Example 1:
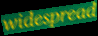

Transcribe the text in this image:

widespread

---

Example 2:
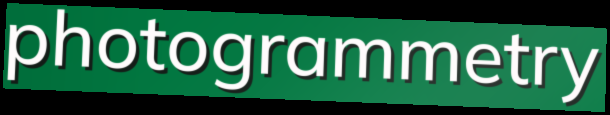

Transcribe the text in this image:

photogrammetry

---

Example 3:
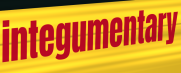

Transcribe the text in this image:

integumentary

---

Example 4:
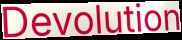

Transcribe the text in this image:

Devolution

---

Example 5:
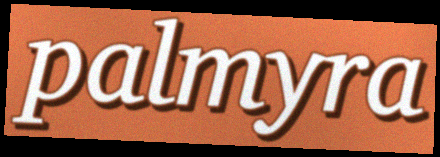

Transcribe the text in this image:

palmyra